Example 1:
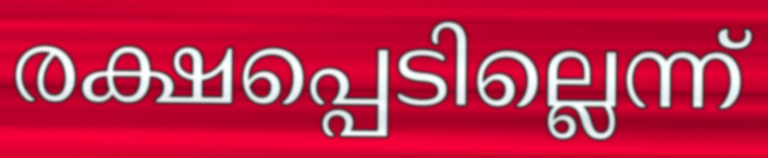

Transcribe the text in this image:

രക്ഷപ്പെടില്ലെന്ന്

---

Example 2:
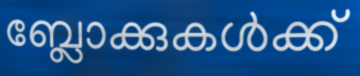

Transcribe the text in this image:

ബ്ലോക്കുകൾക്ക്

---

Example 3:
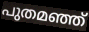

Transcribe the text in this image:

പുതമഞ്ഞ്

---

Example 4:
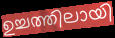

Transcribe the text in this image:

ഉച്ചത്തിലായി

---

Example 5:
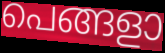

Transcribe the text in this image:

പെങ്ങളാ